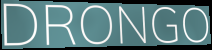
DRONGO